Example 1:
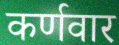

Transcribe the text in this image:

कर्णवार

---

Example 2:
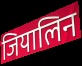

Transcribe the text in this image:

जियालिन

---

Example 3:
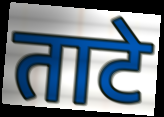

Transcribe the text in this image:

ताटे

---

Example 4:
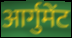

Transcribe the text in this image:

आर्गुमेंट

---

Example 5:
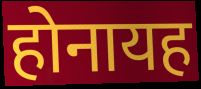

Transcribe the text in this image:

होनायह